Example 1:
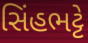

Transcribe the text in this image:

સિંહભટ્ટે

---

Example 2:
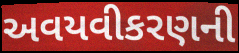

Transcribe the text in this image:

અવયવીકરણની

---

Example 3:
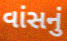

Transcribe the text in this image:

વાંસનું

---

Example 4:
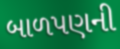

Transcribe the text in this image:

બાળપણની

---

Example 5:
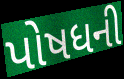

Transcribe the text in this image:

પોષધની